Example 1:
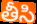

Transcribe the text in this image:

తీసి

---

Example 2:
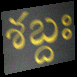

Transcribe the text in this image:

శబ్దః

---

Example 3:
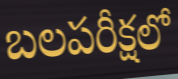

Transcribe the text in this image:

బలపరీక్షలో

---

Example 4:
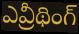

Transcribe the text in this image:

ఎవ్రీథింగ్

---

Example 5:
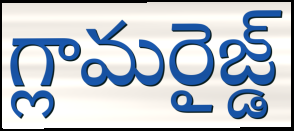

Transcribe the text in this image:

గ్లామరైజ్డ్